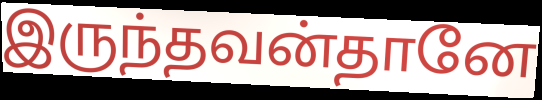
இருந்தவன்தானே